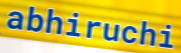
abhiruchi